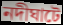
নদীঘাটে